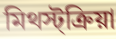
মিথস্ট্ক্রিয়া